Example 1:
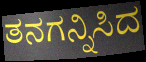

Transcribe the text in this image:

ತನಗನ್ನಿಸಿದ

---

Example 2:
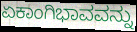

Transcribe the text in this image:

ಏಕಾಂಗಿಭಾವವನ್ನು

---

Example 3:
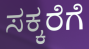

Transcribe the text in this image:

ಸಕ್ಕರೆಗೆ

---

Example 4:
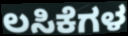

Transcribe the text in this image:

ಲಸಿಕೆಗಳ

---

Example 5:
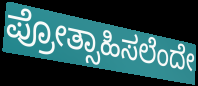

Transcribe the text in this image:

ಪ್ರೋತ್ಸಾಹಿಸಲೆಂದೇ